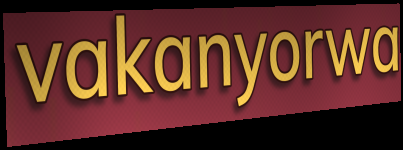
vakanyorwa